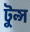
টুল্স